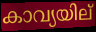
കാവ്യയില്